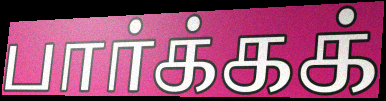
பார்க்கக்